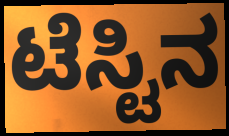
ಟೆಸ್ಟಿನ